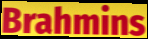
Brahmins